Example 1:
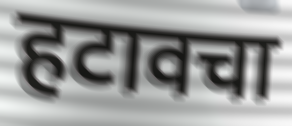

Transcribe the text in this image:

हटावचा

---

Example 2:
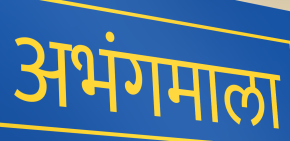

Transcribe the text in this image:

अभंगमाला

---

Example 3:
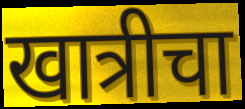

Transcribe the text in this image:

खात्रीचा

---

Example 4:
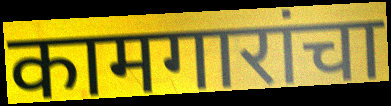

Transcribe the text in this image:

कामगारांचा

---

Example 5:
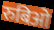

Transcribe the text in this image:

रुबिओ